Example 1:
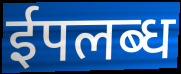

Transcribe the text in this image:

ईपलब्ध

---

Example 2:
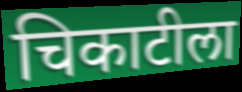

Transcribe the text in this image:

चिकाटीला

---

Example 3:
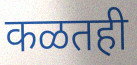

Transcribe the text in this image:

कळतही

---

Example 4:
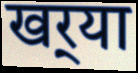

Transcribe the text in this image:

खर्या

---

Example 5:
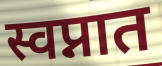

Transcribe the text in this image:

स्वप्नात